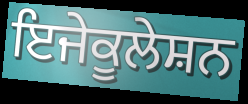
ਇਜੇਕੂਲੇਸ਼ਨ